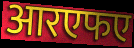
आरएफए